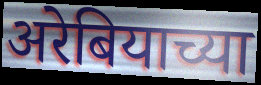
अरेबियाच्या